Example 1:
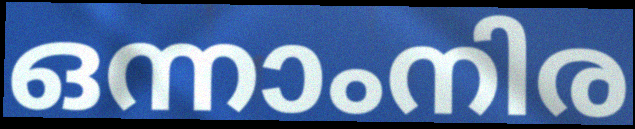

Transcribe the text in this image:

ഒന്നാംനിര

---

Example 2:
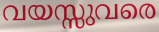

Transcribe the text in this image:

വയസ്സുവരെ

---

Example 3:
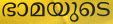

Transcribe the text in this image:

ഭാമയുടെ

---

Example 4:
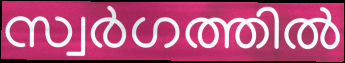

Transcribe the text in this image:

സ്വർഗത്തിൽ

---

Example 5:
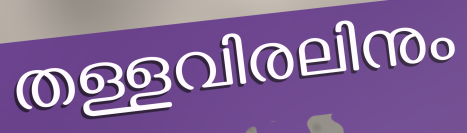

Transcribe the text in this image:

തള്ളവിരലിനും